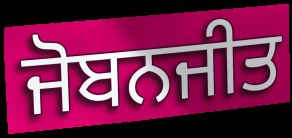
ਜੋਬਨਜੀਤ